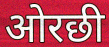
ओरछी